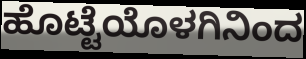
ಹೊಟ್ಟೆಯೊಳಗಿನಿಂದ